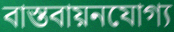
বাস্তবায়নযোগ্য